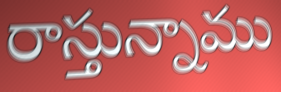
రాస్తున్నాము